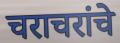
चराचरांचे